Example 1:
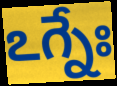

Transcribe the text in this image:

ఽగ్నేః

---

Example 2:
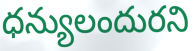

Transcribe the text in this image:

ధన్యులందురని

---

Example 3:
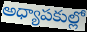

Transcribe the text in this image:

అధ్యాపకుల్లో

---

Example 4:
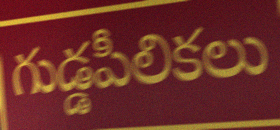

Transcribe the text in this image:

గుడ్డపీలికలు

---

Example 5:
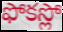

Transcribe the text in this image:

ఫోకస్లో